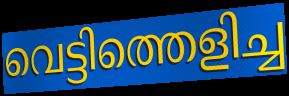
വെട്ടിത്തെളിച്ച